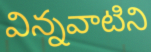
విన్నవాటిని